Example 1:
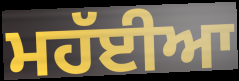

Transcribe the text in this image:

ਮਹੱਈਆ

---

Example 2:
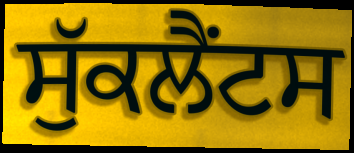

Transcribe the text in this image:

ਸੁੱਕਲੈਂਟਸ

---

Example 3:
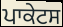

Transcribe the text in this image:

ਪਾਕੇਟਸ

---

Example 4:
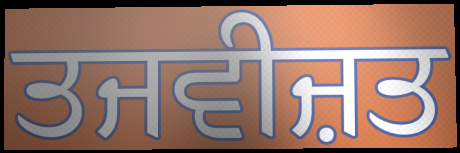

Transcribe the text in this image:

ਤਜਵੀਜ਼ਤ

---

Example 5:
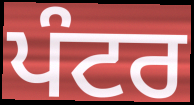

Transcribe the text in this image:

ਪੰਟਰ